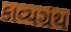
કાવ્યગ્રંથ